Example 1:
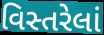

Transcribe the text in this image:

વિસ્તરેલાં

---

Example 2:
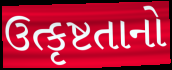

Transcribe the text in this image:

ઉત્કૃષ્ટતાનો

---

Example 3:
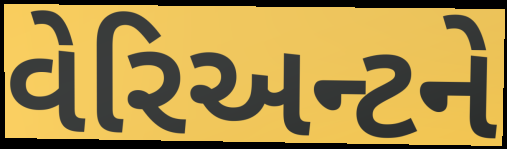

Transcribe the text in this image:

વેરિઅન્ટને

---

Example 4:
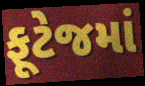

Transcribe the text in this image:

ફૂટેજમાં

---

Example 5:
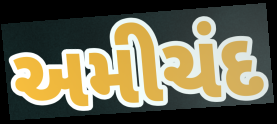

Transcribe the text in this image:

અમીચંદ